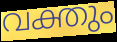
വക്തും